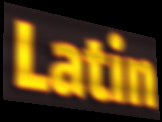
Latin